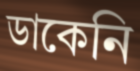
ডাকেনি